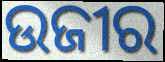
ଉଜୀର